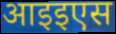
आइइएस